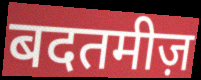
बदतमीज़